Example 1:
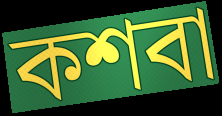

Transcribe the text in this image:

কশবা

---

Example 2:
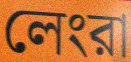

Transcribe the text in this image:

লেংরা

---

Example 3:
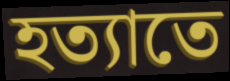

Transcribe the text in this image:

হত্যাতে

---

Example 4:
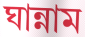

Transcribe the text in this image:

ঘান্নাম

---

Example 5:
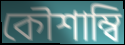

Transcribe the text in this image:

কৌশাম্বি